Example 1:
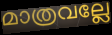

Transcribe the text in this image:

മാത്രവല്ലേ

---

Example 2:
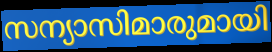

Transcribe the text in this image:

സന്യാസിമാരുമായി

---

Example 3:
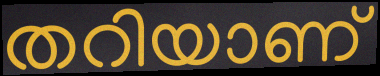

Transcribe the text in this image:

തറിയാണ്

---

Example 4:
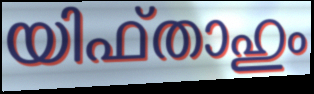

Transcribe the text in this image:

യിഫ്താഹും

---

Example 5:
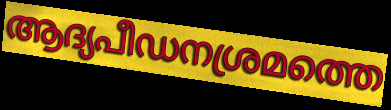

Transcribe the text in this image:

ആദ്യപീഡനശ്രമത്തെ